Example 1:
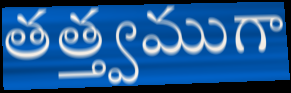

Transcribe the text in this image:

తత్త్వముగా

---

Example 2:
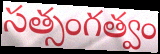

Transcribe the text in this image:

సత్సంగత్వం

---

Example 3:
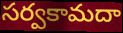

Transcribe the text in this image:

సర్వకామదా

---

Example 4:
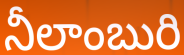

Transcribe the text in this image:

నీలాంబురి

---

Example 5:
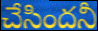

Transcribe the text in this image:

చేసిందనీ